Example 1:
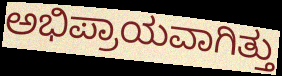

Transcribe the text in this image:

ಅಭಿಪ್ರಾಯವಾಗಿತ್ತು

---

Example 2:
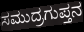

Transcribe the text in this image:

ಸಮುದ್ರಗುಪ್ತನ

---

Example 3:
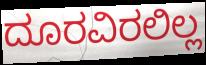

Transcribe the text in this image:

ದೂರವಿರಲಿಲ್ಲ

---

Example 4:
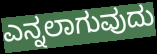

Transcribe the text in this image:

ಎನ್ನಲಾಗುವುದು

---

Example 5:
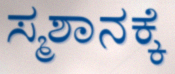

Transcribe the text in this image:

ಸ್ಮಶಾನಕ್ಕೆ